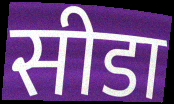
सीडा